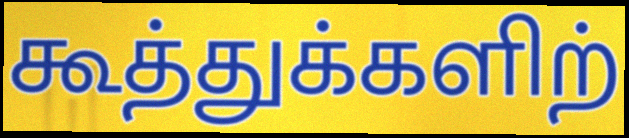
கூத்துக்களிற்